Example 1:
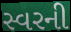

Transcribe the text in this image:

સ્વરની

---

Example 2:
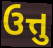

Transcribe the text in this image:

ઉત્તુ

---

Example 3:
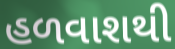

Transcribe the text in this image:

હળવાશથી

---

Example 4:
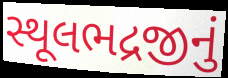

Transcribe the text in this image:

સ્થૂલભદ્રજીનું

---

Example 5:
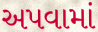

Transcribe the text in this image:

અપવામાં